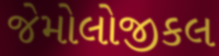
જેમોલોજીકલ